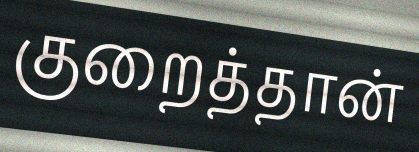
குறைத்தான்